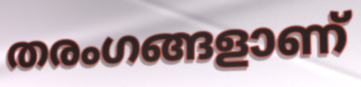
തരംഗങ്ങളാണ്